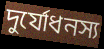
দুর্যোধনস্য